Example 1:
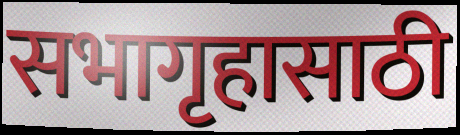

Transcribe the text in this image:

सभागृहासाठी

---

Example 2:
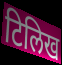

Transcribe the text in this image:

टिलिख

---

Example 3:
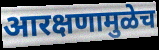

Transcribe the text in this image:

आरक्षणामुळेच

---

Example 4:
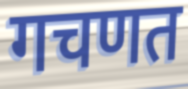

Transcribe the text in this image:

गचणत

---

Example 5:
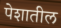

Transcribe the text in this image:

पेशातील